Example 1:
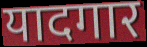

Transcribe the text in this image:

यादगार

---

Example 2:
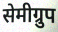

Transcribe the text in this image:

सेमीग्रुप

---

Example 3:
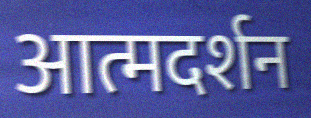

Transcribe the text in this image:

आत्मदर्शन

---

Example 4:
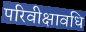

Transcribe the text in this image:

परिवीक्षावधि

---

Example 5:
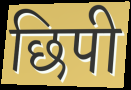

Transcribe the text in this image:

छिपी